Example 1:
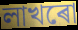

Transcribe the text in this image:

লাখৰো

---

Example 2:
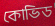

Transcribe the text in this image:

কোভিড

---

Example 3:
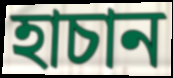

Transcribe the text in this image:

হাচান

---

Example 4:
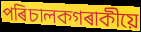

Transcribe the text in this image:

পৰিচালকগৰাকীয়ে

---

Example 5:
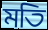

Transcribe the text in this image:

মতি